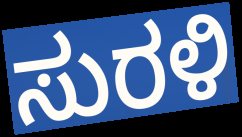
ಸುರಳಿ